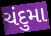
ચંદુમા